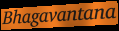
Bhagavantana